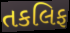
તકલિફ